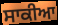
ਸਾਕੀਆ